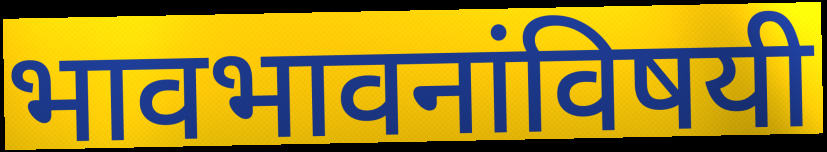
भावभावनांविषयी